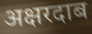
अक्षरदाब